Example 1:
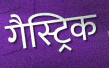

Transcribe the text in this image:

गैस्ट्रिक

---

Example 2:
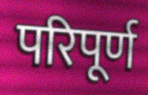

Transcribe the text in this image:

परिपूर्ण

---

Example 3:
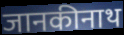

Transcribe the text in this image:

जानकीनाथ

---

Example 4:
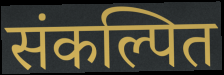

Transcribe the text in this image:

संकल्पित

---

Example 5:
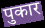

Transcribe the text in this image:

पुकार